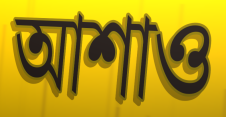
আশাও